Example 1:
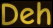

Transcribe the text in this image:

Deh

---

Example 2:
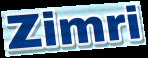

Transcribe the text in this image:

Zimri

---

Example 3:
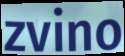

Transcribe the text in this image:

zvino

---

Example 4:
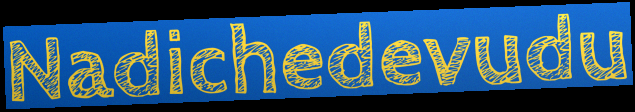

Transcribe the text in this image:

Nadichedevudu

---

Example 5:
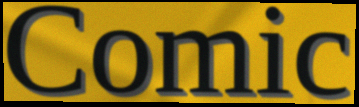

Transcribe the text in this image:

Comic